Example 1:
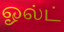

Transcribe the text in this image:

ஓல்ட்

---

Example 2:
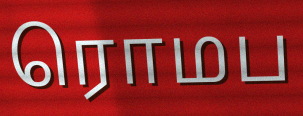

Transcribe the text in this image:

ரொமப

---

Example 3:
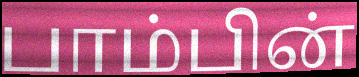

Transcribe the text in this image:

பாம்பின்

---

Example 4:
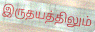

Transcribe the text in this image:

இருதயத்திலும்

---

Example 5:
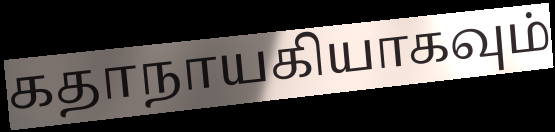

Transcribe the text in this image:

கதாநாயகியாகவும்